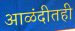
आळंदीतही